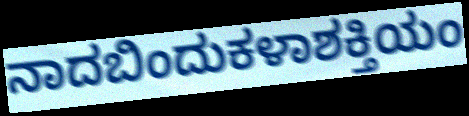
ನಾದಬಿಂದುಕಳಾಶಕ್ತಿಯಂ